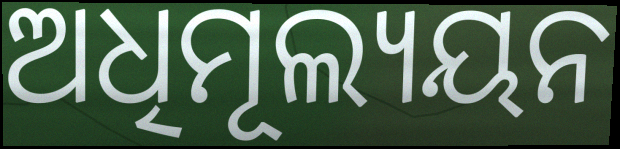
ଅଧିମୂଲ୍ୟୟନ